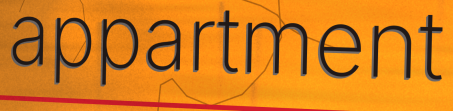
appartment